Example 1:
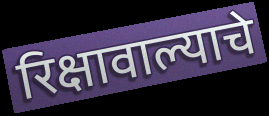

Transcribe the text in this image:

रिक्षावाल्याचे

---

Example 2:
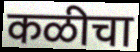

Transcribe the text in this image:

कळीचा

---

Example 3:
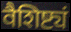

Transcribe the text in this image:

वैशिष्ट्यं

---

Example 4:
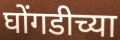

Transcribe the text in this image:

घोंगडीच्या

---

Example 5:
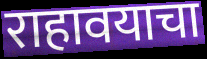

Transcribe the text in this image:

राहावयाचा